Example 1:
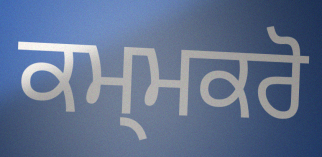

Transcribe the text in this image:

ਕਮ੍ਮਕਰੋ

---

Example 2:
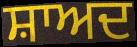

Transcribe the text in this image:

ਸ਼ਾਅਦ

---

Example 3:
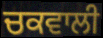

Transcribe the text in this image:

ਚਕਵਾਲੀ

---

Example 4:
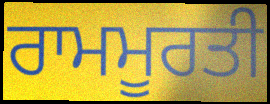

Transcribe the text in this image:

ਰਾਮਮੂਰਤੀ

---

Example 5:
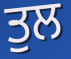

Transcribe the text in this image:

ਤੁਲ